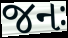
જનઃ